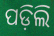
ପଡ଼ିଲି